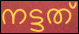
നട്ടത്